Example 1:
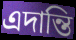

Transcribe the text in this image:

এদান্তি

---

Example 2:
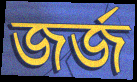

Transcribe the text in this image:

জর্জ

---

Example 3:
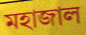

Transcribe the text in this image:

মহাজাল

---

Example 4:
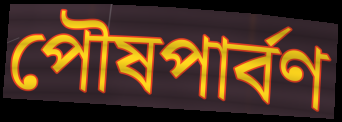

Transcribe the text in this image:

পৌষপার্বণ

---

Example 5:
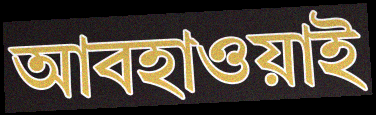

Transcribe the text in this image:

আবহাওয়াই